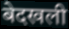
बेदखली